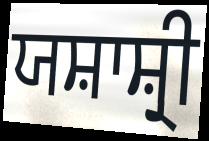
ਯਸ਼ਾਸ਼੍ਰੀ